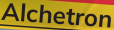
Alchetron